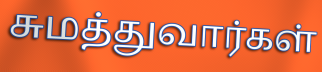
சுமத்துவார்கள்